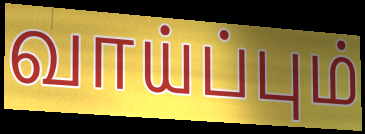
வாய்ப்பும்